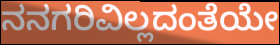
ನನಗರಿವಿಲ್ಲದಂತೆಯೇ